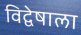
विद्वेषाला